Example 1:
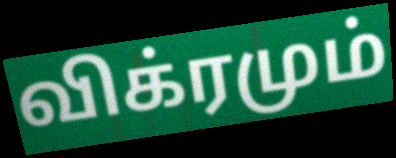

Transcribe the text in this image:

விக்ரமும்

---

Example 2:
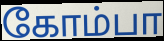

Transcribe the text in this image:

கோம்பா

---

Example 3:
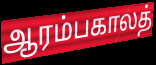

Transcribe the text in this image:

ஆரம்பகாலத்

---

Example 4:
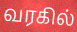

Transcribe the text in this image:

வரகில்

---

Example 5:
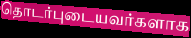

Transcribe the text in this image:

தொடர்புடையவர்களாக